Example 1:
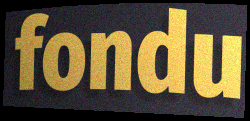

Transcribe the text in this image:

fondu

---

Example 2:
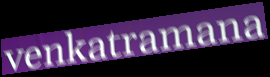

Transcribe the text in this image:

venkatramana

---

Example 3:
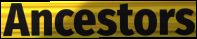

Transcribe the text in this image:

Ancestors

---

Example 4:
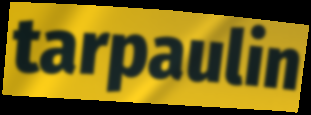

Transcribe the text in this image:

tarpaulin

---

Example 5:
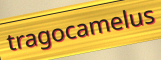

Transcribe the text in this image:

tragocamelus